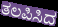
ತಲಪಿಸಿದ